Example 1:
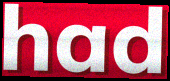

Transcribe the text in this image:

had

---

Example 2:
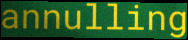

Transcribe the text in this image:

annulling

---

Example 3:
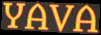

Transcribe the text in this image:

YAVA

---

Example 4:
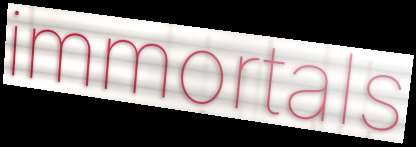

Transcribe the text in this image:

immortals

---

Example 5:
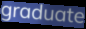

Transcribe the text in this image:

graduate